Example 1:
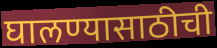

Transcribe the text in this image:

घालण्यासाठीची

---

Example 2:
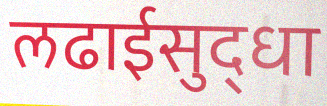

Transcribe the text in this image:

लढाईसुद्धा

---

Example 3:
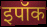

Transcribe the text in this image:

इपॉक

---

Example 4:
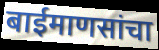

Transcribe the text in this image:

बाईमाणसांचा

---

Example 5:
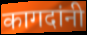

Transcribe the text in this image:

कागदांनी